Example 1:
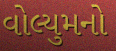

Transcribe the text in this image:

વોલ્યુમનો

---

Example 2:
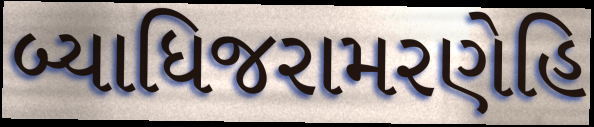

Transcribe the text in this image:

બ્યાધિજરામરણેહિ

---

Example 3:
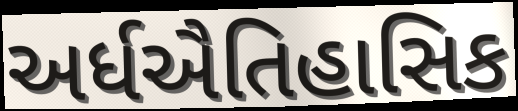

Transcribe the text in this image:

અર્ધઐતિહાસિક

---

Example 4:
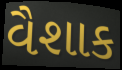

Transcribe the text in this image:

વૈશાક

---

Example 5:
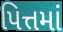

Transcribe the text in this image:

પિત્તમાં